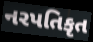
નરપતિકૃત